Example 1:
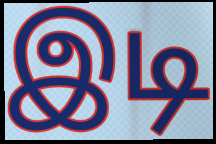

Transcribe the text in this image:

இடி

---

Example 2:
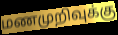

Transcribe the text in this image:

மணமுறிவுக்கு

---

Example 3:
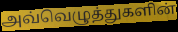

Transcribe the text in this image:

அவ்வெழுத்துகளின்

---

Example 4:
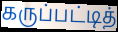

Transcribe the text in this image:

கருப்பட்டித்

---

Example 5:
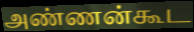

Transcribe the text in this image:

அண்ணன்கூட